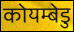
कोयम्बेडु